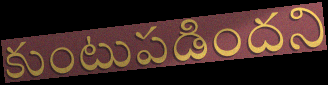
కుంటుపడిందని